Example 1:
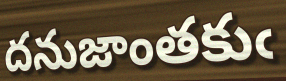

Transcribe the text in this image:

దనుజాంతకుఁ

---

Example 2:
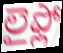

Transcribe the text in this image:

లైఫ్లో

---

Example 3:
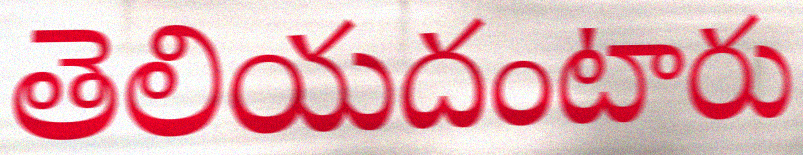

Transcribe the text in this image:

తెలియదంటారు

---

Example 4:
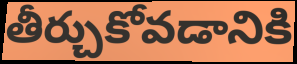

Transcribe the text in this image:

తీర్చుకోవడానికి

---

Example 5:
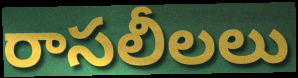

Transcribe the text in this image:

రాసలీలలు